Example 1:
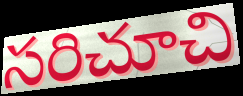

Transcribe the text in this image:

సరిచూచి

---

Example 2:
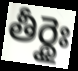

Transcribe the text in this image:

తీర్థైః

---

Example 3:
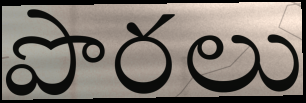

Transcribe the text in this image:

పొరలు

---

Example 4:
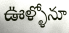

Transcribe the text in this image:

ఊళ్ళోనూ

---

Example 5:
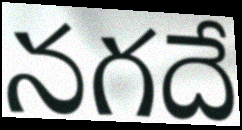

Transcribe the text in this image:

నగదే